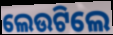
ଲେଉଟିଲେ